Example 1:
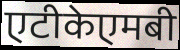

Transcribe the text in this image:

एटीकेएमबी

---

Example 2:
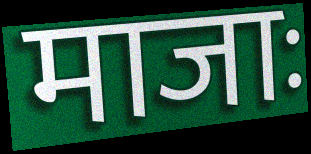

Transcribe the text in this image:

माजाः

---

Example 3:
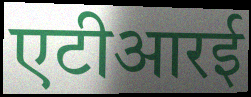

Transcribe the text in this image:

एटीआरई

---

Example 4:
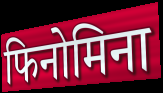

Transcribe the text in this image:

फिनोमिना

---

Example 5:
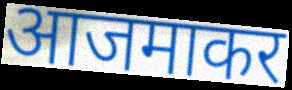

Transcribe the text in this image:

आजमाकर